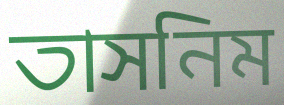
তাসনিম